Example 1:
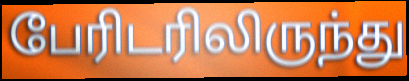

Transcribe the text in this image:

பேரிடரிலிருந்து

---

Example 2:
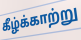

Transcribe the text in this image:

கீழ்க்காற்று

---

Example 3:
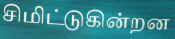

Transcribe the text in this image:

சிமிட்டுகின்றன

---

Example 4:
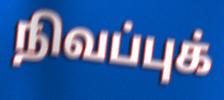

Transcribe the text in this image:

நிவப்புக்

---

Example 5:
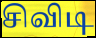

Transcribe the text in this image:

சிவிடி